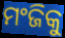
ମଂଜିକୁ